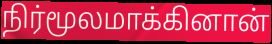
நிர்மூலமாக்கினான்